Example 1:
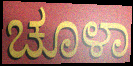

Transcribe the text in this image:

ಚೂಳಾ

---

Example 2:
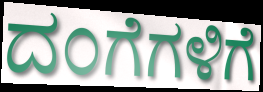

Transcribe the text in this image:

ದಂಗೆಗಳಿಗೆ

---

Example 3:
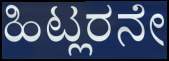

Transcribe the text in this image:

ಹಿಟ್ಲರನೇ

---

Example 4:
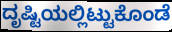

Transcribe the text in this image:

ದೃಷ್ಟಿಯಲ್ಲಿಟ್ಟುಕೊಂಡೆ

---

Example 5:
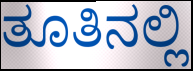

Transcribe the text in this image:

ತೂತಿನಲ್ಲಿ